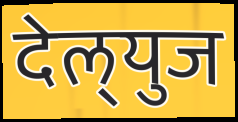
देल्युज